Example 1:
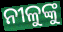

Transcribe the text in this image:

ନୀଳୁଙ୍କୁ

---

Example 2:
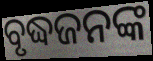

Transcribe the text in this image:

ବୃଦ୍ଧଜନଙ୍କ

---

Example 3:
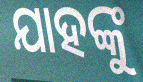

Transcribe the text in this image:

ଯାହଙ୍କୁ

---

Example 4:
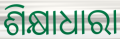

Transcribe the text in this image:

ଶିକ୍ଷାଧାରା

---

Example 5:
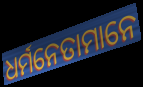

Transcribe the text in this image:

ଧର୍ମନେତାମାନେ